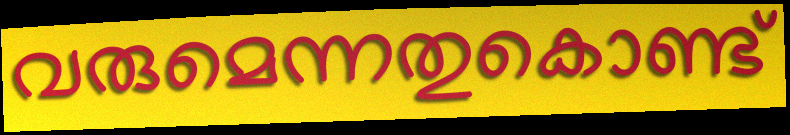
വരുമെന്നതുകൊണ്ട്